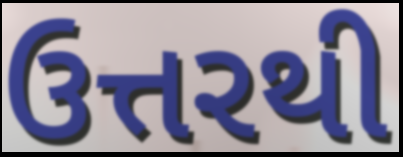
ઉત્તરથી